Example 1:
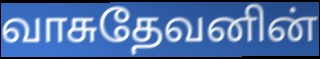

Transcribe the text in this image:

வாசுதேவனின்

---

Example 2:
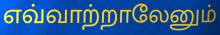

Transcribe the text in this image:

எவ்வாற்றாலேனும்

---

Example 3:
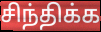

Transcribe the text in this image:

சிந்திக்க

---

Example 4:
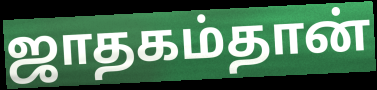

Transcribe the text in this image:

ஜாதகம்தான்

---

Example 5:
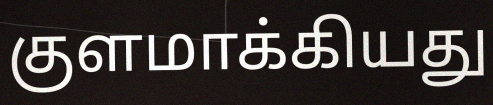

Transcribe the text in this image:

குளமாக்கியது